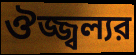
ঔজ্জ্বল্যর